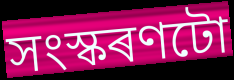
সংস্কৰণটো